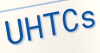
UHTCs